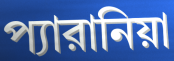
প্যারানিয়া